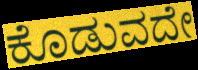
ಕೊಡುವದೇ